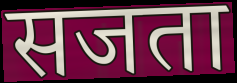
सजता